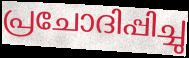
പ്രചോദിപ്പിച്ചു